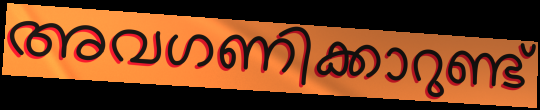
അവഗണിക്കാറുണ്ട്